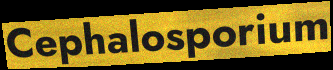
Cephalosporium